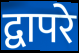
द्वापरे